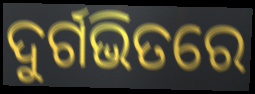
ଦୁର୍ଗଭିତରେ